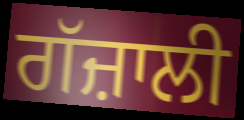
ਗੱਜ਼ਾਲੀ